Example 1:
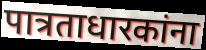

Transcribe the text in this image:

पात्रताधारकांना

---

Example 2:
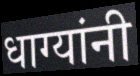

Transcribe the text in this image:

धाग्यांनी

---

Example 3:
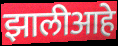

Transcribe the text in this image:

झालीआहे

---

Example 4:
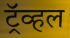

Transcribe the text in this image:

ट्रॅव्हल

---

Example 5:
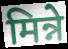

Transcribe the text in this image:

मिन्ने